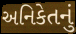
અનિકેતનું